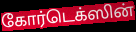
கோர்டெக்ஸின்